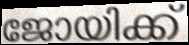
ജോയിക്ക്